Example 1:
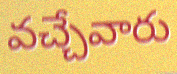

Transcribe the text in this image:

వచ్చేవారు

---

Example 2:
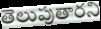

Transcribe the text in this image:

తెలుపుతారని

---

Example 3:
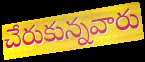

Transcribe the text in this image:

చేరుకున్నవారు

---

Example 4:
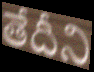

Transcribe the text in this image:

తేదీని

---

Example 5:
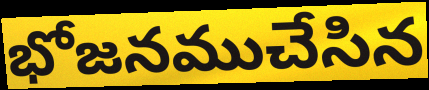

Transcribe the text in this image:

భోజనముచేసిన